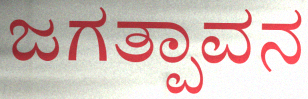
ಜಗತ್ಪಾವನ